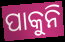
ପାକୁନି